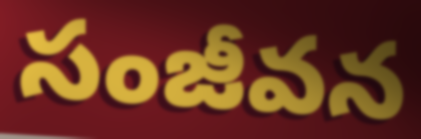
సంజీవన